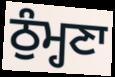
ਠੁੰਮ੍ਹਣਾ